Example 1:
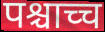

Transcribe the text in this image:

पश्चाच्च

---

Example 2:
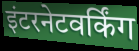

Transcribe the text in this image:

इंटरनेटवर्किंग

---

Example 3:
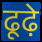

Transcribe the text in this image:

ढूढ़े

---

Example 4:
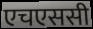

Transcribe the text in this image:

एचएससी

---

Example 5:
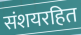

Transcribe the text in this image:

संशयरहित